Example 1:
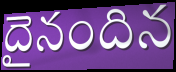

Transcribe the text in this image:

దైనందిన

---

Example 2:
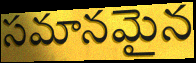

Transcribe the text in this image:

సమానమైన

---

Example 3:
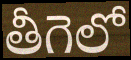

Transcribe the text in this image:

తీగెలో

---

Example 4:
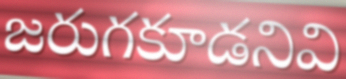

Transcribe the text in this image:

జరుగకూడనివి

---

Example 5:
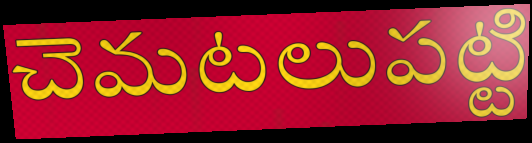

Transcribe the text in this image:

చెమటలుపట్టి